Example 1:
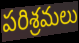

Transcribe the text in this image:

పరిశ్రమలు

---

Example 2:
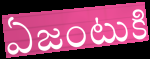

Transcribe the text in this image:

ఏజంటుకి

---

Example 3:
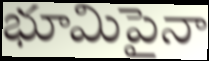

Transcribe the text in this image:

భూమిపైనా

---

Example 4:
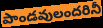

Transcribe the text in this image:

పాండవులందరినీ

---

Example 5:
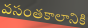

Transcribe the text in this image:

వసంతకాలానికి